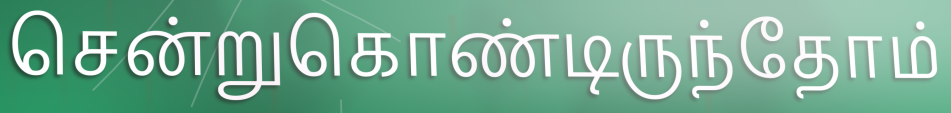
சென்றுகொண்டிருந்தோம்